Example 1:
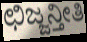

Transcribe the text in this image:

ಛಿಜ್ಜನ್ತೀತಿ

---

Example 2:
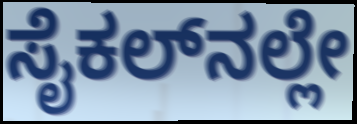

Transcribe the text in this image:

ಸೈಕಲ್‌ನಲ್ಲೇ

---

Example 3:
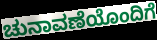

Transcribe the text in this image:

ಚುನಾವಣೆಯೊಂದಿಗೆ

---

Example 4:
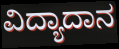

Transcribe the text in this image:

ವಿದ್ಯಾದಾನ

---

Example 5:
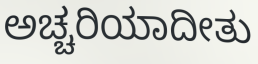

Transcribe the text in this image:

ಅಚ್ಚರಿಯಾದೀತು